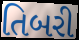
તિબરી